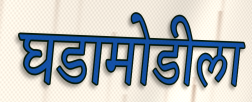
घडामोडीला